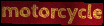
motorcycle